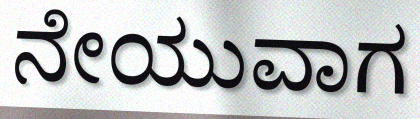
ನೇಯುವಾಗ